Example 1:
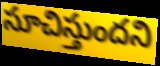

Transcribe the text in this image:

సూచిస్తుందని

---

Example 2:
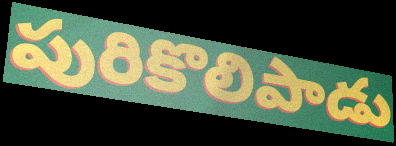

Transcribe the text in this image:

పురికొలిపాడు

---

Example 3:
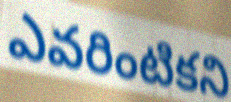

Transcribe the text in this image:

ఎవరింటికని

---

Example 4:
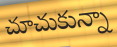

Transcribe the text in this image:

చూచుకున్నా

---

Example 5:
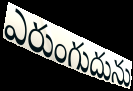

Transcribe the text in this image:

ఎరుంగుదును